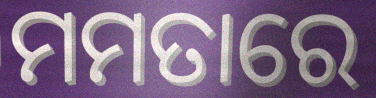
ମମତାରେ